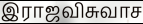
இராஜவிசுவாச